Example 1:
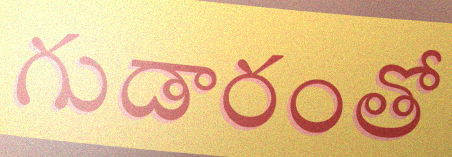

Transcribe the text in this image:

గుడారంతో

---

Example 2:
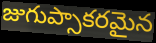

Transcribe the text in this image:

జుగుప్సాకరమైన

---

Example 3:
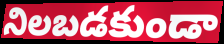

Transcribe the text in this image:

నిలబడకుండా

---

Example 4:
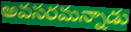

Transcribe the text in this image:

అవసరమన్నాడు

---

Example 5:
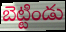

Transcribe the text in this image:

బెట్టిండు